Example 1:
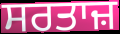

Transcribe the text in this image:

ਸਰਤਾਜ਼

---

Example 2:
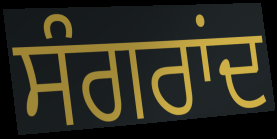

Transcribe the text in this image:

ਸੰਗਰਾਂਦ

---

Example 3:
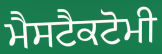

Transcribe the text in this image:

ਮੈਸਟੈਕਟੋਮੀ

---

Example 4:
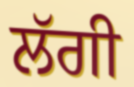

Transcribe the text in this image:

ਲੱਗੀ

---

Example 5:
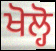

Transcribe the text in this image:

ਖੋਲ੍ਹੋ